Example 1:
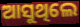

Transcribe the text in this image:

ଆସୁଥିଲେ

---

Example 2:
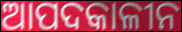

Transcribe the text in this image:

ଆପଦକାଳୀନ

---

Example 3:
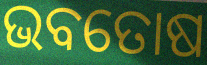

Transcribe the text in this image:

ଭବତୋଷ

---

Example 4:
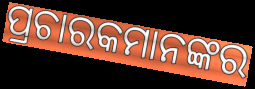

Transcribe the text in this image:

ପ୍ରଚାରକମାନଙ୍କର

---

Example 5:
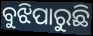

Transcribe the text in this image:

ବୁଝିପାରୁଛି